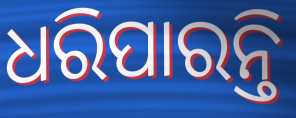
ଧରିପାରନ୍ତି